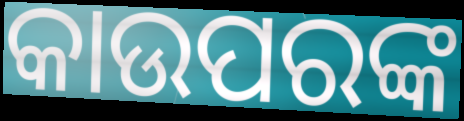
କାଉପରଙ୍କ